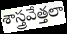
శాస్త్రవేత్తలా